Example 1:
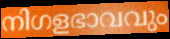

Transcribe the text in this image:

നിഗളഭാവവും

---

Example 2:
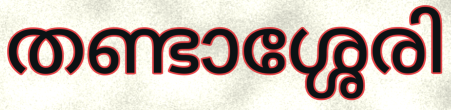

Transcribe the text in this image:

തണ്ടാശ്ശേരി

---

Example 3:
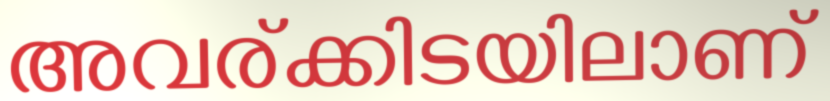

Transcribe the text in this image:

അവര്ക്കിടയിലാണ്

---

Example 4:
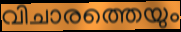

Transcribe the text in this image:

വിചാരത്തെയും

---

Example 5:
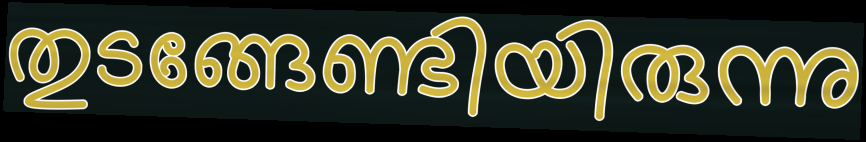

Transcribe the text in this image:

തുടങ്ങേണ്ടിയിരുന്നു